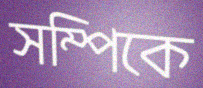
সম্পিকে